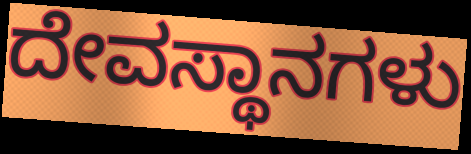
ದೇವಸ್ಥಾನಗಳು